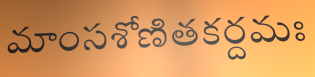
మాంసశోణితకర్దమః